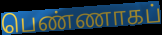
பெண்ணாகப்